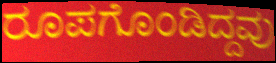
ರೂಪಗೊಂಡಿದ್ದವು